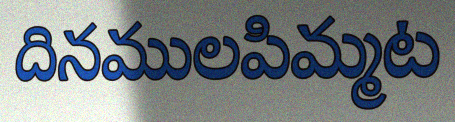
దినములపిమ్మట